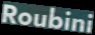
Roubini